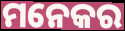
ମନେକର